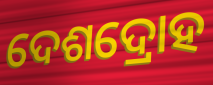
ଦେଶଦ୍ରୋହ